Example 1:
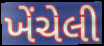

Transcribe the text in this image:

ખેંચેલી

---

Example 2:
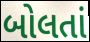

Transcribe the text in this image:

બોલતાં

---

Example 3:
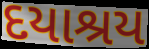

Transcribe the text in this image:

દયાશ્રય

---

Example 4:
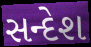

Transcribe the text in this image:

સન્દેશ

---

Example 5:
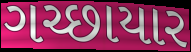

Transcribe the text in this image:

ગચ્છાયાર